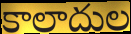
కాలాదుల